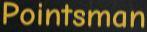
Pointsman